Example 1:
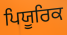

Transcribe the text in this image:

ਪਿਯੂਰਿਕ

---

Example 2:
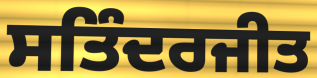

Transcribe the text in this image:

ਸਤਿੰਦਰਜੀਤ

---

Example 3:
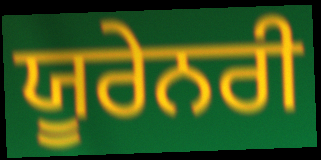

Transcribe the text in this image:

ਯੂਰੇਨਰੀ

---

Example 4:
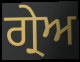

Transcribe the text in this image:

ਗ੍ਰੇਅ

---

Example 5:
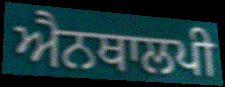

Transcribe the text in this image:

ਐਨਥਾਲਪੀ